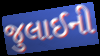
જુલાઈની